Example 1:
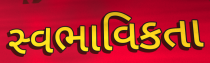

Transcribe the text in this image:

સ્વભાવિકતા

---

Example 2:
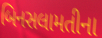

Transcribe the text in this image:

બિનસલામતીના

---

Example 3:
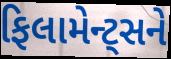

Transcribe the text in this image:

ફિલામેન્ટ્સને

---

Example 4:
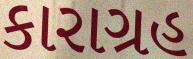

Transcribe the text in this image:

કારાગ્રહ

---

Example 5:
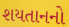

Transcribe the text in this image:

શયતાનનો